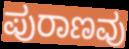
ಪುರಾಣವು